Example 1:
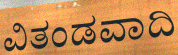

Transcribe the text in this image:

ವಿತಂಡವಾದಿ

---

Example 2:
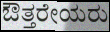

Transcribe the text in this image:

ಔತ್ತರೇಯರು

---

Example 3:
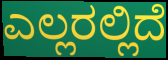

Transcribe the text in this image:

ಎಲ್ಲರಲ್ಲಿದೆ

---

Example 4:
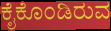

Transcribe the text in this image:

ಕೈಕೊಂಡಿರುವ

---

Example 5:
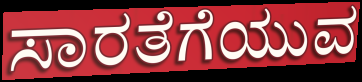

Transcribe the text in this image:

ಸಾರತೆಗೆಯುವ